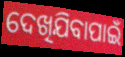
ଦେଖିଯିବାପାଇଁ